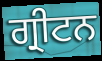
ਗ੍ਰੀਟਨ